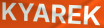
KYAREK